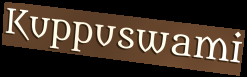
Kuppuswami